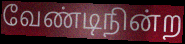
வேண்டிநின்ற